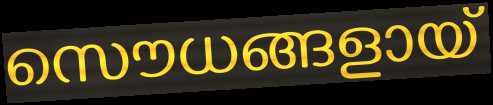
സൌധങ്ങളായ്